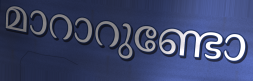
മാറാറുണ്ടോ